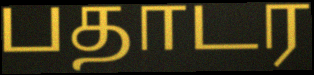
பதாடர